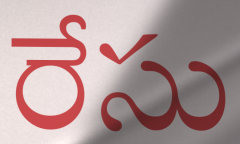
రేసు